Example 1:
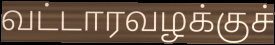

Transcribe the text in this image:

வட்டாரவழக்குச்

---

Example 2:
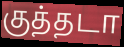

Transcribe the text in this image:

குத்தடா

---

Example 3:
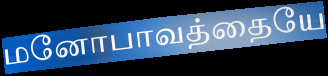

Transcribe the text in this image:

மனோபாவத்தையே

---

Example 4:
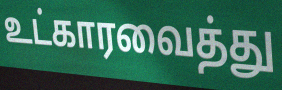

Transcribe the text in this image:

உட்காரவைத்து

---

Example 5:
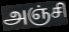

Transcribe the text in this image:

அஞ்சி